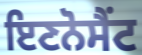
ਇਣਨੋਸੈਂਟ